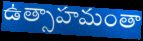
ఉత్సాహమంతా